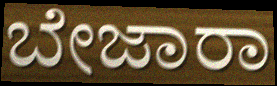
ಬೇಜಾರಾ